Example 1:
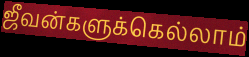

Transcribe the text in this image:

ஜீவன்களுக்கெல்லாம்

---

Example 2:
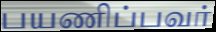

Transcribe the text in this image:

பயணிப்பவர்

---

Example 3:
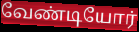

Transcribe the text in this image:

வேண்டியோர்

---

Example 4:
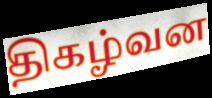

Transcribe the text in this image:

திகழ்வன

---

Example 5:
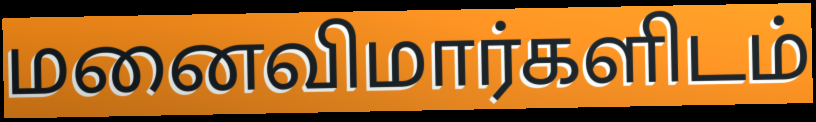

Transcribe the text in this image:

மனைவிமார்களிடம்